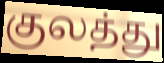
குலத்து